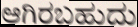
ಆಗಿರಬಹುದು